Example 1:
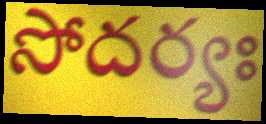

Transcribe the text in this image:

సోదర్యః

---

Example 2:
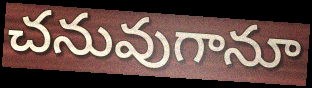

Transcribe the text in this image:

చనువుగానూ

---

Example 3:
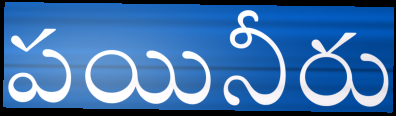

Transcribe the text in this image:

పయినీరు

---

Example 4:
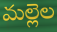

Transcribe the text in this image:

మల్లెల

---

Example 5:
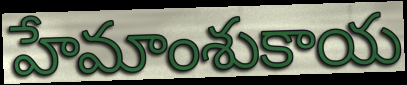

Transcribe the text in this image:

హేమాంశుకాయ